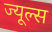
ज्यूल्स